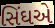
સિંઘએ